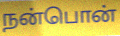
நன்பொன்